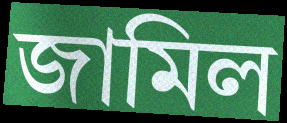
জামিল